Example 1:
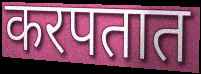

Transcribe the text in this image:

करपतात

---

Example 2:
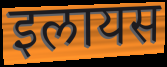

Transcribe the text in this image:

इलायस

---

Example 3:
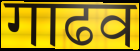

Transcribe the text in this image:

गाढव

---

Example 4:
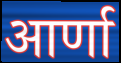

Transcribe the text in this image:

आर्णा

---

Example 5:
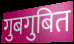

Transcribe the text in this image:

गुबगुबित